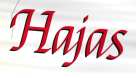
Hajas